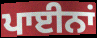
ਪਾਈਨਾਂ